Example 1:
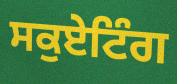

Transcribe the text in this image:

ਸਕੁਏਟਿੰਗ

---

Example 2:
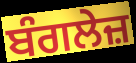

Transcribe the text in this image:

ਬੰਗਲੇਜ਼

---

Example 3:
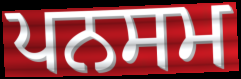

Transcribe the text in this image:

ਪਨਸਮ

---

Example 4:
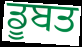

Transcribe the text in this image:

ਡੂਬਤ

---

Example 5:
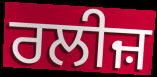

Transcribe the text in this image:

ਰਲੀਜ਼